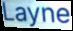
Layne